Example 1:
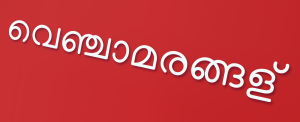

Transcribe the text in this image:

വെഞ്ചാമരങ്ങള്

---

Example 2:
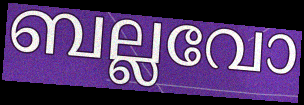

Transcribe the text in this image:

ബല്ലവോ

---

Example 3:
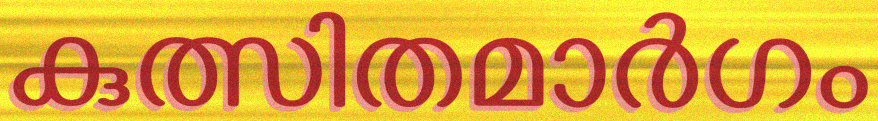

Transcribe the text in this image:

കുത്സിതമാർഗം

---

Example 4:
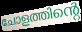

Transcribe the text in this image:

ചോളത്തിന്റെ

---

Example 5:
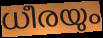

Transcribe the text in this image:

ധീരയും